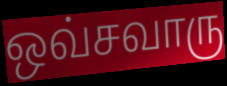
ஒவ்சவாரு